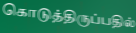
கொடுத்திருப்பதில்